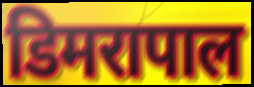
डिमरापाल